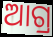
ଆଗ୍ର